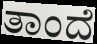
ತಾಂದೆ